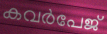
കവർപേജ്